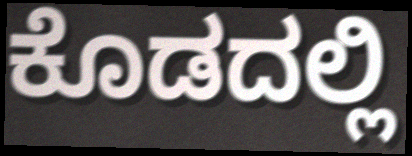
ಕೊಡದಲ್ಲಿ